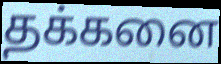
தக்கனை